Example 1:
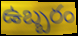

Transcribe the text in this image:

ఉబ్బరం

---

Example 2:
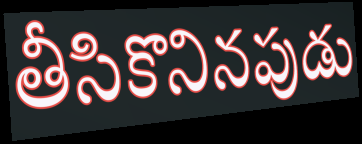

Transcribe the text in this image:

తీసికొనినపుడు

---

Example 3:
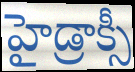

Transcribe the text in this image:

హైడ్రాక్సీ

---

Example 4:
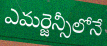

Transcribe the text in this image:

ఎమర్జెన్సీలోనే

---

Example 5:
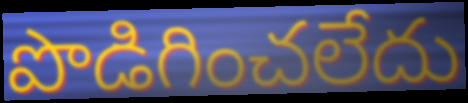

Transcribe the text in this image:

పొడిగించలేదు